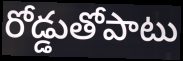
రోడ్డుతోపాటు